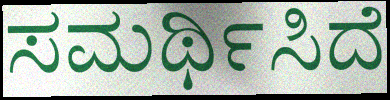
ಸಮರ್ಥಿಸಿದೆ